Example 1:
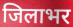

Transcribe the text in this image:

जिलाभर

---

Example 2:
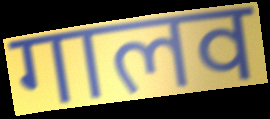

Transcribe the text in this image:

गालव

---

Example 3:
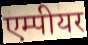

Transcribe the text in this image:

एम्पीयर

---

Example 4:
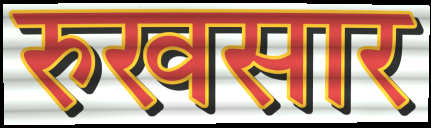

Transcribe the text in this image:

रुखसार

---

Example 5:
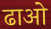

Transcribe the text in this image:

ढाओ